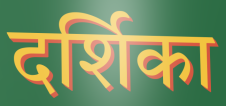
दर्शिका